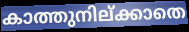
കാത്തുനില്ക്കാതെ